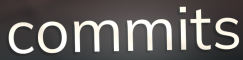
commits